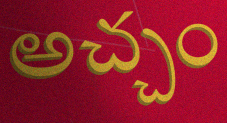
అచ్చం